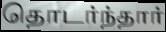
தொடர்ந்தார்